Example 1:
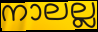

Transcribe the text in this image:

നാലല്ല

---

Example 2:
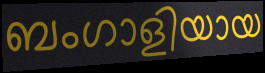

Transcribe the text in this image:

ബംഗാളിയായ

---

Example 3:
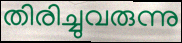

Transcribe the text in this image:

തിരിച്ചുവരുന്നു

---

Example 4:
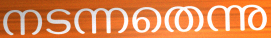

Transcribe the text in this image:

നടന്നതെന്നു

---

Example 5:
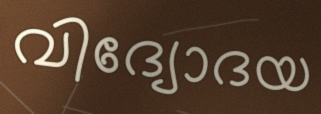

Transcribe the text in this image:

വിദ്യോദയ